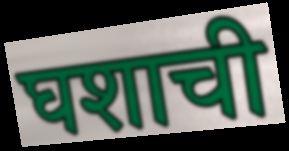
घशाची